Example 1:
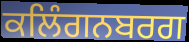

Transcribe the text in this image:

ਕਲਿੰਗਨਬਰਗ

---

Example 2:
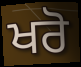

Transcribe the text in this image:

ਖਰੋ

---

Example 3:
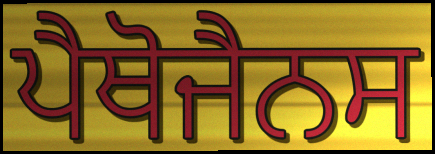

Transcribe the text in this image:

ਪੈਥੋਜੈਨਸ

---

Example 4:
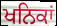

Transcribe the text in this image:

ਖਨਿਕਾਂ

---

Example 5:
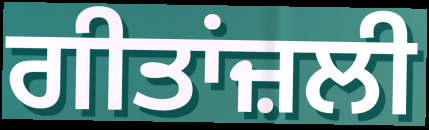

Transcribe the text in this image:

ਗੀਤਾਂਜ਼ਲੀ